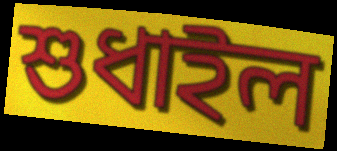
শুধাইল